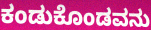
ಕಂಡುಕೊಂಡವನು